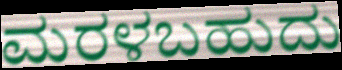
ಮರಳಬಹುದು